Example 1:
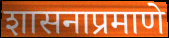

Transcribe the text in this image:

शासनाप्रमाणे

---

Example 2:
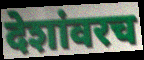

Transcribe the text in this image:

देशांवरच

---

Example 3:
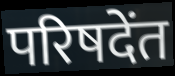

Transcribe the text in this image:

परिषदेंत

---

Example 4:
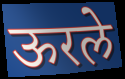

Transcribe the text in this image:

ऊरले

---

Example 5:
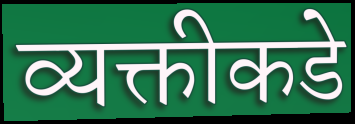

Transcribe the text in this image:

व्यक्तीकडे